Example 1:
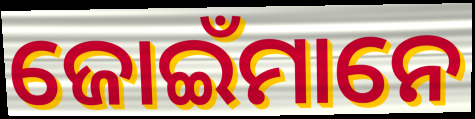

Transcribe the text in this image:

ଜୋଇଁମାନେ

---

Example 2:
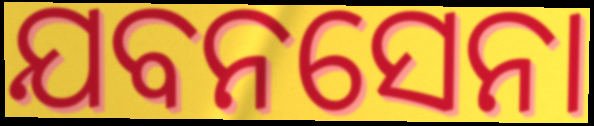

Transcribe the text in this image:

ଯବନସେନା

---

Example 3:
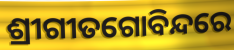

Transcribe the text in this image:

ଶ୍ରୀଗୀତଗୋବିନ୍ଦରେ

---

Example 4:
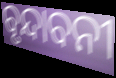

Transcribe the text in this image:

ବୃନ୍ଦାବନୀ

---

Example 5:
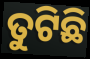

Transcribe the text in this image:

ତୁଟିଛି